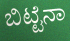
ಬಿಟ್ಟೆನಾ